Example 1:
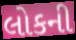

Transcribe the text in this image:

લોકની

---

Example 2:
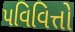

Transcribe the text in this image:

પવિવિત્તો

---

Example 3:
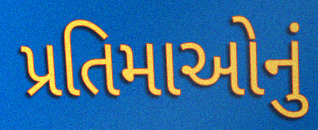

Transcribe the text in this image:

પ્રતિમાઓનું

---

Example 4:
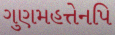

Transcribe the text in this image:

ગુણમહત્તેનપિ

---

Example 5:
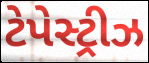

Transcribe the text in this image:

ટેપેસ્ટ્રીઝ